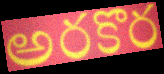
అరకొర